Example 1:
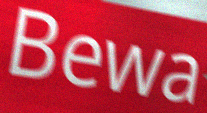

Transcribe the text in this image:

Bewa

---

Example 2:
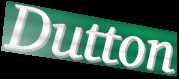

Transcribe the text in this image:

Dutton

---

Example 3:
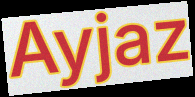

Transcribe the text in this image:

Ayjaz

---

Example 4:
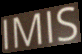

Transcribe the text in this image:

IMIS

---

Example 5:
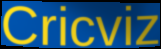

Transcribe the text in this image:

Cricviz